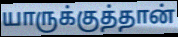
யாருக்குத்தான்